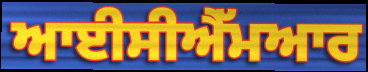
ਆਈਸੀਐੱਮਆਰ